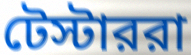
টেস্টাররা